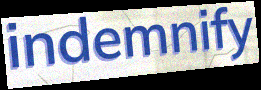
indemnify